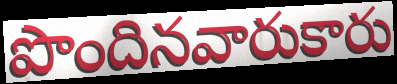
పొందినవారుకారు